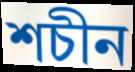
শচীন